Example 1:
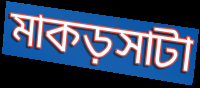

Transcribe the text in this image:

মাকড়সাটা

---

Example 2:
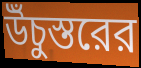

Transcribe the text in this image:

উঁচুস্তরের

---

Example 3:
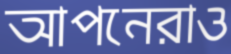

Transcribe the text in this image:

আপনেরাও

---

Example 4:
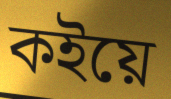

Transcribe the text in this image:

কইয়ে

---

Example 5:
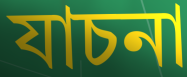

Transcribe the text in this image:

যাচনা